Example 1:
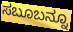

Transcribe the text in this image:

ಸಬೂಬನ್ನೂ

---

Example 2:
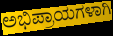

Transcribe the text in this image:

ಅಭಿಪ್ರಾಯಗಳಾಗಿ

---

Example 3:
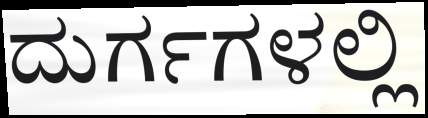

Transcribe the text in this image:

ದುರ್ಗಗಳಲ್ಲಿ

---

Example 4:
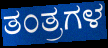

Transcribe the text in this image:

ತಂತ್ರಗಳ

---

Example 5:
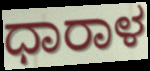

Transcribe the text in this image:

ಧಾರಾಳ